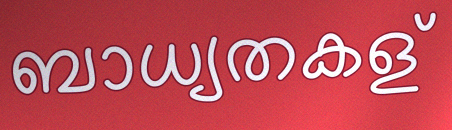
ബാധ്യതകള്